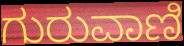
ಗುರುವಾಣಿ